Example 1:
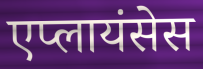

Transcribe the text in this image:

एप्लायंसेस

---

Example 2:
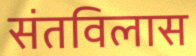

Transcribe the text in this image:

संतविलास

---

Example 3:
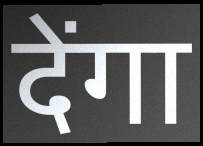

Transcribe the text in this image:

देंगा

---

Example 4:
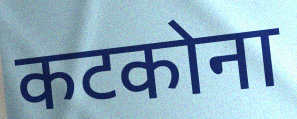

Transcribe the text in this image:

कटकोना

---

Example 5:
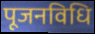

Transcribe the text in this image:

पूजनविधि